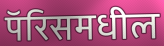
पॅरिसमधील